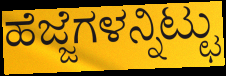
ಹೆಜ್ಜೆಗಳನ್ನಿಟ್ಟು